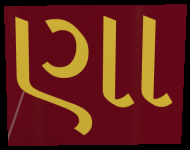
ણા